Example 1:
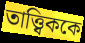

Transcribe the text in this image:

তাত্ত্বিককে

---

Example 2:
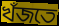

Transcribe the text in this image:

খঁজতে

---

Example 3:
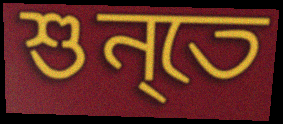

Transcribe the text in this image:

শুন্‌তে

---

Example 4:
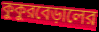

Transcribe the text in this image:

কুকুরবেড়ালের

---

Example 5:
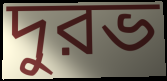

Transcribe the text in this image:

দুরভ